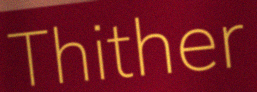
Thither